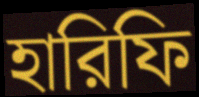
হারিফি